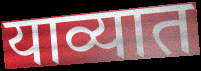
याव्यात